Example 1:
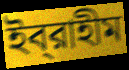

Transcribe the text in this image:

ইব্‌রাহীম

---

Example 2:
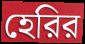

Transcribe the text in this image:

হেরির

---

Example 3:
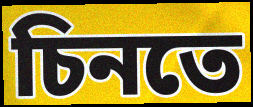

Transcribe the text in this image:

চিনতে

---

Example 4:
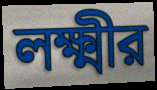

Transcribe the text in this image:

লক্ষ্মীর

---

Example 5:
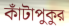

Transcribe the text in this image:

কাঁটাপুকুর